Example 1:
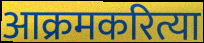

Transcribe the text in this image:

आक्रमकरित्या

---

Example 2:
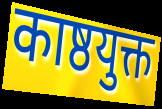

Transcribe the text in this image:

काष्ठयुक्त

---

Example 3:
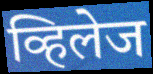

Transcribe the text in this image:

व्हिलेज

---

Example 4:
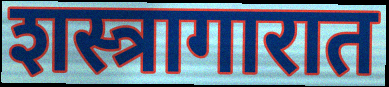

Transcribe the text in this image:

शस्त्रागारात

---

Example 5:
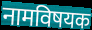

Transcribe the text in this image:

नामविषयक